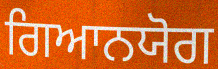
ਗਿਆਨਯੋਗ